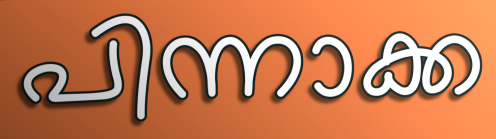
പിന്നാക്ക